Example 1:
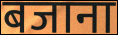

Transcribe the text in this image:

बजाना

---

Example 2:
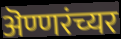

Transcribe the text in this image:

ऄण्णरंच्यर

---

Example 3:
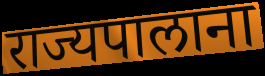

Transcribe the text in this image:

राज्यपालाना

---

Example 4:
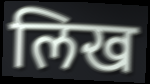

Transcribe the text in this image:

लिख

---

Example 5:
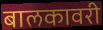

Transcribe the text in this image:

बालकावरी